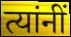
त्यांनीं